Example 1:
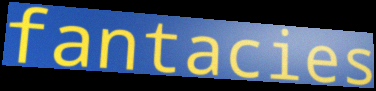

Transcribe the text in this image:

fantacies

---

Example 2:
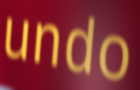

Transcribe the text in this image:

undo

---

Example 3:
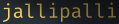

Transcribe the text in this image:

jallipalli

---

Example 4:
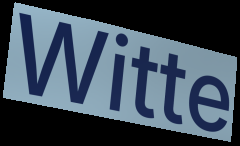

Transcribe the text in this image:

Witte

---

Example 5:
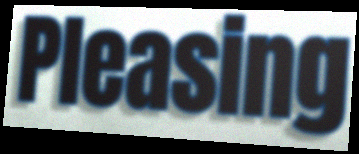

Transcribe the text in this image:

Pleasing